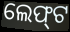
ଲେଫ୍‌ଟ